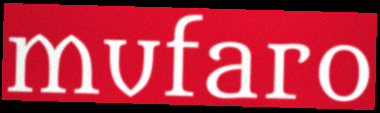
mufaro